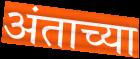
अंताच्या